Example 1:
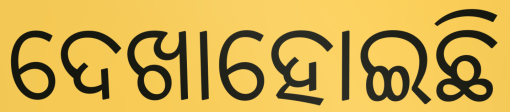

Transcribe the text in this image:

ଦେଖାହୋଇଛି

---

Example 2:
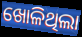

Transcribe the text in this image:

ଖୋଳିଥିଲା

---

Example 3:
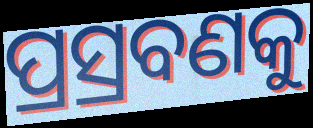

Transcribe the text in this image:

ପ୍ରସ୍ରବଣକୁ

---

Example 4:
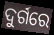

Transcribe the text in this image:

ଦୁର୍ଗରେ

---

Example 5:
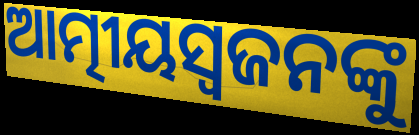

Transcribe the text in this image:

ଆତ୍ମୀୟସ୍ୱଜନଙ୍କୁ